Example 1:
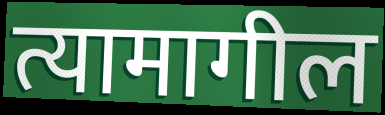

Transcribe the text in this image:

त्यामागील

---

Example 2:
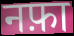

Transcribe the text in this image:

नफ़ा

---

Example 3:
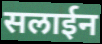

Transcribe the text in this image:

सलाईन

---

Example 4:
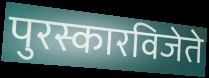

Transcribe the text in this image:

पुरस्कारविजेते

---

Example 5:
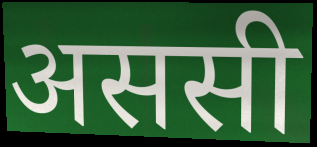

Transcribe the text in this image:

अससी